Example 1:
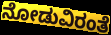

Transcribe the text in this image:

ನೋಡುವಿರಂತೆ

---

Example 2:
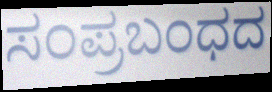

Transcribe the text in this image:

ಸಂಪ್ರಬಂಧದ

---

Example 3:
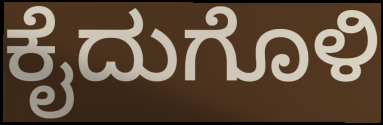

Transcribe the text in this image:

ಕೈದುಗೊಳಿ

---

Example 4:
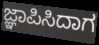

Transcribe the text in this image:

ಜ್ಞಾಪಿಸಿದಾಗ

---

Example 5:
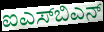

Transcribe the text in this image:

ಐಎಸ್‌ಬಿಎನ್